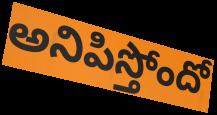
అనిపిస్తోందో